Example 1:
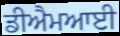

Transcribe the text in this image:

ਡੀਐਮਆਈ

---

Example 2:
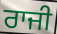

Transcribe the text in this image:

ਰਾਜੀ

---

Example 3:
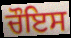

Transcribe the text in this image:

ਚੌਇਸ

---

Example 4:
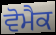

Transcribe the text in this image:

ਵੋਮੈਕ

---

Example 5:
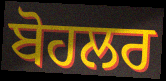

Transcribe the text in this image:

ਬੋਹਲਰ